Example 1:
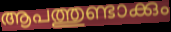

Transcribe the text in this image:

ആപത്തുണ്ടാക്കും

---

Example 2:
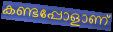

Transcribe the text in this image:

കണ്ടപ്പോളാണ്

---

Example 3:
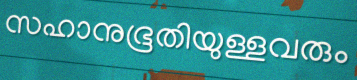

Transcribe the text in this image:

സഹാനുഭൂതിയുള്ളവരും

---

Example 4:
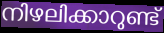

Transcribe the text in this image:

നിഴലിക്കാറുണ്ട്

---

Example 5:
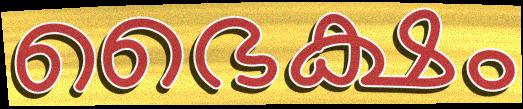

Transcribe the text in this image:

ഭൈക്ഷം